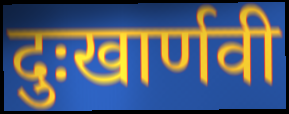
दुःखार्णवी